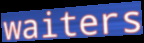
waiters